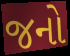
જનો